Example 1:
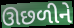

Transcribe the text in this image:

ઊછળીને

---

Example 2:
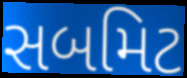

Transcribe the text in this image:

સબમિટ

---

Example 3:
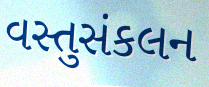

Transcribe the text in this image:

વસ્તુસંકલન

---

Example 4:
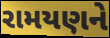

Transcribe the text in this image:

રામયણને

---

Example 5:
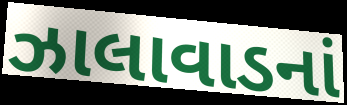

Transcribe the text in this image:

ઝાલાવાડનાં